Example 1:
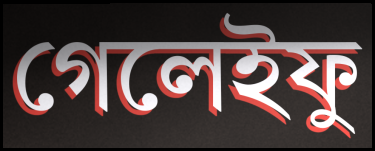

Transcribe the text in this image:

গেলেইফু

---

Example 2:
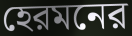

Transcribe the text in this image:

হেরমনের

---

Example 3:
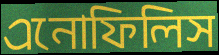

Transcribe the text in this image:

এনোফিলিস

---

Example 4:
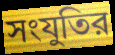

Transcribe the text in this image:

সংযুতির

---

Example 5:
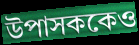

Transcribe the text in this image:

উপাসককেও